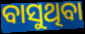
ବାସୁଥିବା